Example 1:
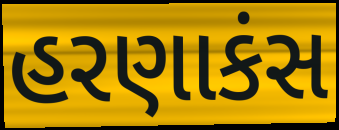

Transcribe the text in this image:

હરણાકંસ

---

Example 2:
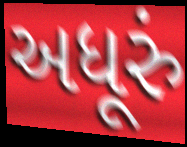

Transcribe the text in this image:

અધૂરું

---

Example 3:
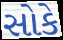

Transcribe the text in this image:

સોકે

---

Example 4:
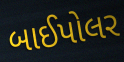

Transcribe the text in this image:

બાઈપોલર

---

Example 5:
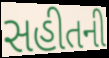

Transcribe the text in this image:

સહીતની